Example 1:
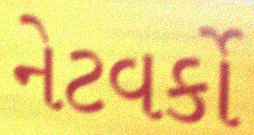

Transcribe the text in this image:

નેટવર્કો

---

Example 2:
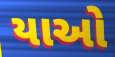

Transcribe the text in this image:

યાઓ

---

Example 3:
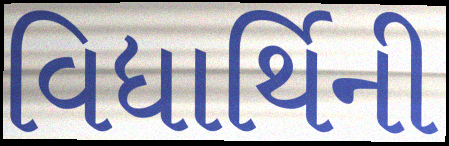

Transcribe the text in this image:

વિદ્યાર્થિની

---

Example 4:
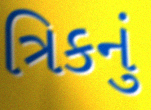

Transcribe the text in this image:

ત્રિકનું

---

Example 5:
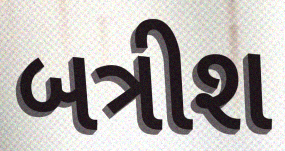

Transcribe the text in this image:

બત્રીશ